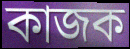
কাজক